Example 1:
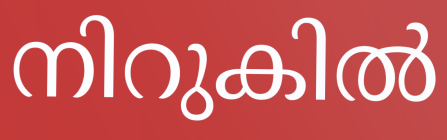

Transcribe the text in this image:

നിറുകിൽ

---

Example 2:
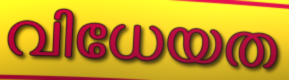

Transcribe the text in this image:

വിധേയത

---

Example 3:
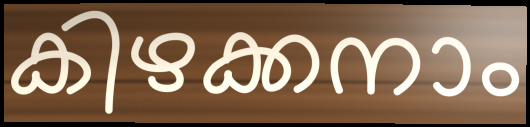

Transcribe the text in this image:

കിഴക്കനാം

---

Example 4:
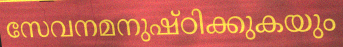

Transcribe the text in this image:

സേവനമനുഷ്ഠിക്കുകയും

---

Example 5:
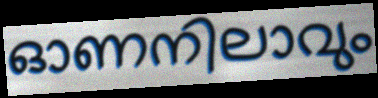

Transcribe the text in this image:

ഓണനിലാവും